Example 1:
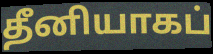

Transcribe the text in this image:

தீனியாகப்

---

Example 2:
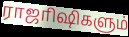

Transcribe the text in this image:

ராஜரிஷிகளும்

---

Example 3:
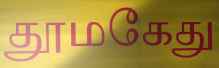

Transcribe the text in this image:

தூமகேது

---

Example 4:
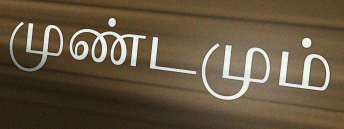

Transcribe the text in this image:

முண்டமும்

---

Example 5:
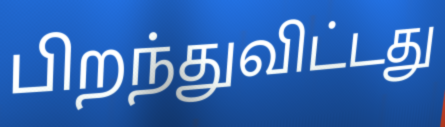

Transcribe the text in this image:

பிறந்துவிட்டது